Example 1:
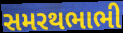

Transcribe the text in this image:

સમરથભાભી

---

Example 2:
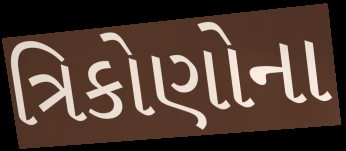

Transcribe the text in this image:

ત્રિકોણોના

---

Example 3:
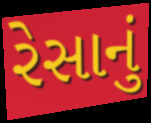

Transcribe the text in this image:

રેસાનું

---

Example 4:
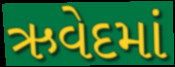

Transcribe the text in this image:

ઋવેદમાં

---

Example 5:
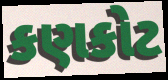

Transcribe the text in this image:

કણકોટ